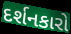
દર્શનકારો